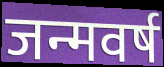
जन्मवर्ष